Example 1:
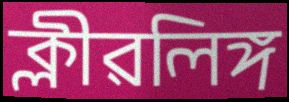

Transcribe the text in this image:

ক্লীৱলিঙ্গ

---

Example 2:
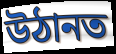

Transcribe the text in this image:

উঠানত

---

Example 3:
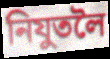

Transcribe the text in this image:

নিযুতলৈ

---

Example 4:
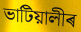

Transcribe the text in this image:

ভাটিয়ালীৰ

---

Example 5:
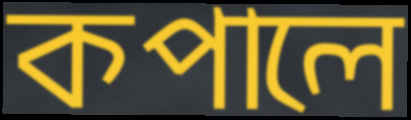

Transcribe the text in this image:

কপালে